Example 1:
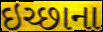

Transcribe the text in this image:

ઇચ્છાના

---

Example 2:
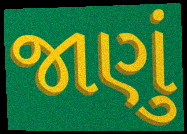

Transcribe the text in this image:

જાણું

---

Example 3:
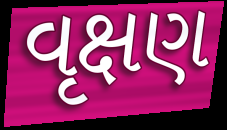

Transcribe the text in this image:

વૃક્ષણ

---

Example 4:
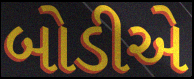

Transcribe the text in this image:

બોડીએ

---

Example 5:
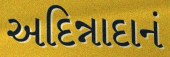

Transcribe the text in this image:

અદિન્નાદાનં